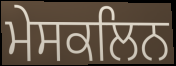
ਮੇਸਕਲਿਨ